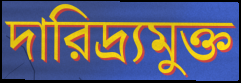
দারিদ্র্যমুক্ত